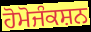
ਹੋਮੋਜੰਕਸ਼ਨ